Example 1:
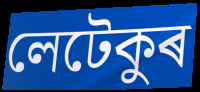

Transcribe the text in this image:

লেটেকুৰ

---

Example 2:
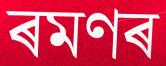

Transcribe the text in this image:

ৰমণৰ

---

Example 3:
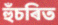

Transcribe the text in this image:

হুঁচৰিত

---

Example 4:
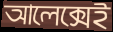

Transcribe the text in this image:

আলেক্সেই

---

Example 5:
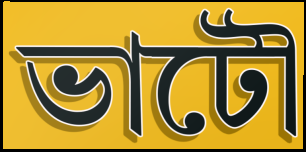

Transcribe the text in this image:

ভাটৌ